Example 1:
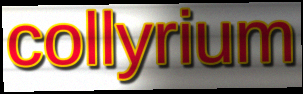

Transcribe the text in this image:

collyrium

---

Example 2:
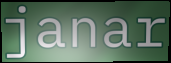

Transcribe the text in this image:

janar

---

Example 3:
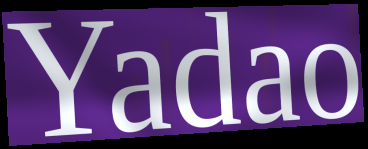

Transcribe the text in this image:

Yadao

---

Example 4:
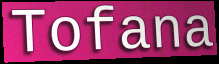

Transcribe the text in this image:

Tofana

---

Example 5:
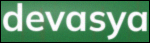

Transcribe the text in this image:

devasya